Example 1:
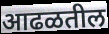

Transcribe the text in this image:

आढळतील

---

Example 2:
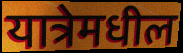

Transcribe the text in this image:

यात्रेमधील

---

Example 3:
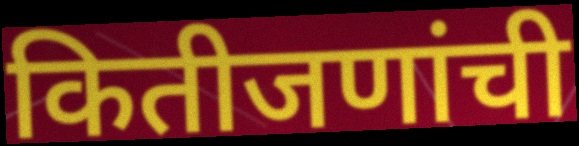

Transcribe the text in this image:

कितीजणांची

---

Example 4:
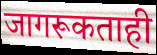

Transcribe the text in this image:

जागरूकताही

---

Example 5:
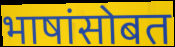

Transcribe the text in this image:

भाषांसोबत